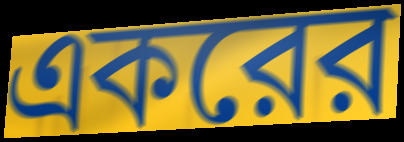
একরের